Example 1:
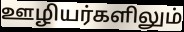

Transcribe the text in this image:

ஊழியர்களிலும்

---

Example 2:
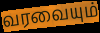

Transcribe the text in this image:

வரவையும்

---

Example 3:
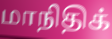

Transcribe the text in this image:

மாநிதிக்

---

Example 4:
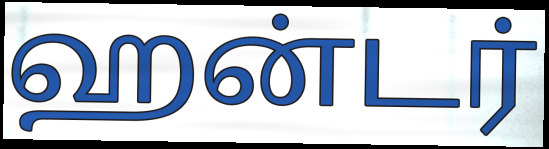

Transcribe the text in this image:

ஹன்டர்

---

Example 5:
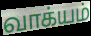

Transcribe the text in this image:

வாக்யம்